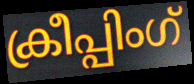
ക്രീപ്പിംഗ്